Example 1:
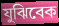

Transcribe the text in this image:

যুঝিবেক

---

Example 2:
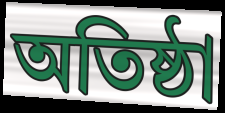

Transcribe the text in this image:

অতিষ্ঠা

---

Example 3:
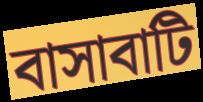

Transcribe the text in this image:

বাসাবাটি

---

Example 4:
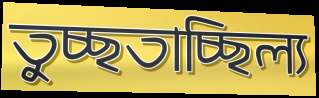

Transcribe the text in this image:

তুচ্ছতাচ্ছিল্য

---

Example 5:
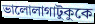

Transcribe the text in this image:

ভালোলাগাটুকুকে